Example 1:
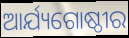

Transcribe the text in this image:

ଆର୍ଯ୍ୟଗୋଷ୍ଠୀର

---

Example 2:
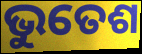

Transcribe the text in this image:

ଭୁତେଶ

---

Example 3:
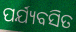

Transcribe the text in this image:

ପର୍ଯ୍ୟବସିତ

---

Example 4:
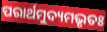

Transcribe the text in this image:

ପରାର୍ଥମୁଦ୍ୟମଭୃତଃ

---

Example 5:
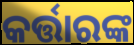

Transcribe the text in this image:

କର୍ତ୍ତାରଙ୍କ